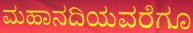
ಮಹಾನದಿಯವರೆಗೂ